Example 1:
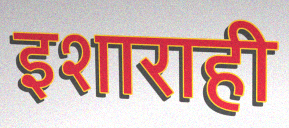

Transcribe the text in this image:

इशाराही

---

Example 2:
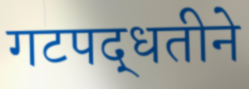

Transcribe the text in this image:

गटपद्धतीने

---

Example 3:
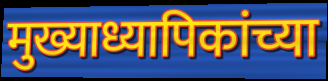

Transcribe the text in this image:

मुख्याध्यापिकांच्या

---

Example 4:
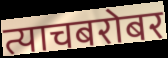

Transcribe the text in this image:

त्याचबरोबर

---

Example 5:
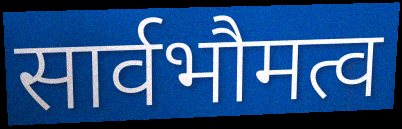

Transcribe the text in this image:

सार्वभौमत्व